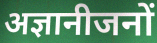
अज्ञानीजनों